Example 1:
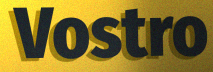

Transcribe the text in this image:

Vostro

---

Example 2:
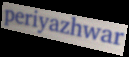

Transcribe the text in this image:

periyazhwar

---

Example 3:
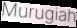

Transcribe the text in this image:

Murugiah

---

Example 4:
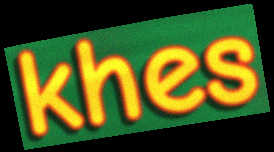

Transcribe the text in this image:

khes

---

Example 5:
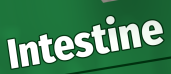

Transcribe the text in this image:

Intestine